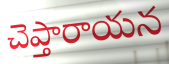
చెప్తారాయన